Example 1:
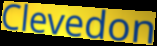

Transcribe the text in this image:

Clevedon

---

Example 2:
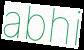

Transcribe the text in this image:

abhi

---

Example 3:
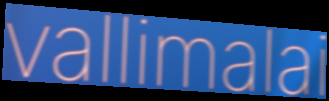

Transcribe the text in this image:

vallimalai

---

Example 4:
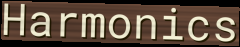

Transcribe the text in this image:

Harmonics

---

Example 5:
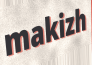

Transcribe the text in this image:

makizh